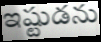
ఇష్టుడను